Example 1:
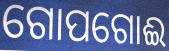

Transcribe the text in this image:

ଗୋପଗୋଈ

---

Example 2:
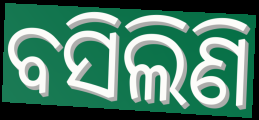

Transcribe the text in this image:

ବସିଲିଣି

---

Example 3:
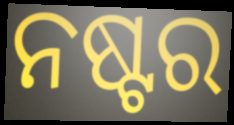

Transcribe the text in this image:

ନଷ୍ଟର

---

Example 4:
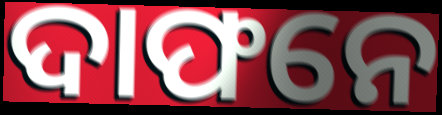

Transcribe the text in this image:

ଦାଫନେ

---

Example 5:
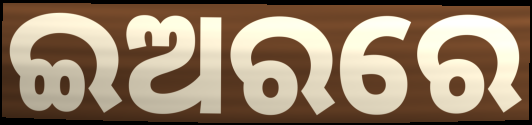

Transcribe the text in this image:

ଇଅରରେ